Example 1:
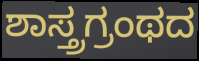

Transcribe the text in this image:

ಶಾಸ್ತ್ರಗ್ರಂಥದ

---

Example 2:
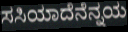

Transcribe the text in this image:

ಸಸಿಯಾದೆನೆನ್ನಯ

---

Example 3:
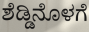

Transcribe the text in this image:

ಶೆಡ್ಡಿನೊಳಗೆ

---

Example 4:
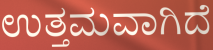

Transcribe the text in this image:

ಉತ್ತಮವಾಗಿದೆ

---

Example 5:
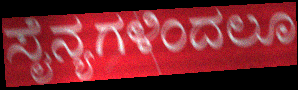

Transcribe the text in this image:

ಸೈನ್ಯಗಳಿಂದಲೂ